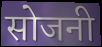
सोजनी